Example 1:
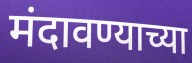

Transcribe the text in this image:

मंदावण्याच्या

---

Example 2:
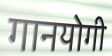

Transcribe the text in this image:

गानयोगी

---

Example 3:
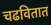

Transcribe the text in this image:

चढवितात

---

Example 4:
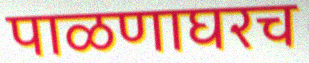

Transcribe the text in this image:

पाळणाघरच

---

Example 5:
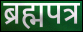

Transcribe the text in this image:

ब्रह्मपत्र